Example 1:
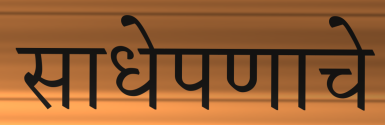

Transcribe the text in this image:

साधेपणाचे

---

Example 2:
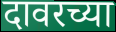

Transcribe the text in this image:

दावरच्या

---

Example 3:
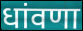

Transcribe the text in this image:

धांवणा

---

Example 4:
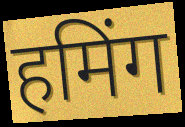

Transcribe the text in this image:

हमिंग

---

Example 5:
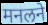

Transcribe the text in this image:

मनलने